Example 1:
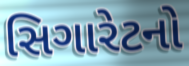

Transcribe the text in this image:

સિગારેટનો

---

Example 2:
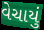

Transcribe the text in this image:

વેચાયું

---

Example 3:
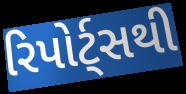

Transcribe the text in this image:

રિપોર્ટ્સથી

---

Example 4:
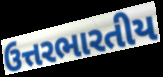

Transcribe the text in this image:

ઉત્તરભારતીય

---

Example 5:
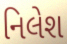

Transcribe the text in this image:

નિલેશ